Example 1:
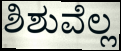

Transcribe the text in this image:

ಶಿಶುವೆಲ್ಲ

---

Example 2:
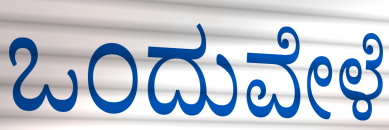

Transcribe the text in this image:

ಒಂದುವೇಳೆ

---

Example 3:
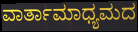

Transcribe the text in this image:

ವಾರ್ತಾಮಾಧ್ಯಮದ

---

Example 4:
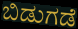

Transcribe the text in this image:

ಬಿಡುಗಡೆ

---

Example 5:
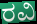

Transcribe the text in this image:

ರವಿ